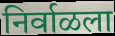
निर्वाळला